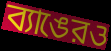
ব্যাঙেরও